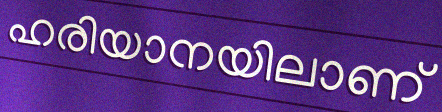
ഹരിയാനയിലാണ്